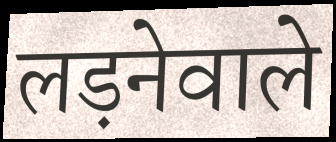
लड़नेवाले